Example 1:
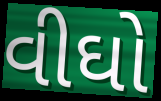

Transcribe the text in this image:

વીઘો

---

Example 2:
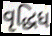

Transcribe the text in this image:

વૃદ્ધિધ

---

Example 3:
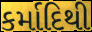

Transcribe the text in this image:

કર્માદિથી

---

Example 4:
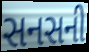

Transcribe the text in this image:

સનસની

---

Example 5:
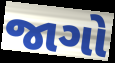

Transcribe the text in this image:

જાગો